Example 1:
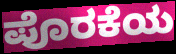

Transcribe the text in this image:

ಪೊರಕೆಯ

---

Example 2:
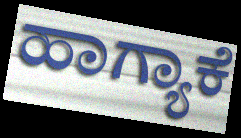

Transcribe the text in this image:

ಹಾಗ್ಯಾಕೆ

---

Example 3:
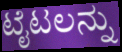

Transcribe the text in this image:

ಟೈಟಲನ್ನು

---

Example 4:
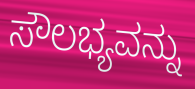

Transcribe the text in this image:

ಸೌಲಭ್ಯವನ್ನು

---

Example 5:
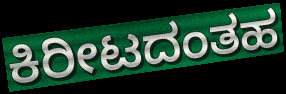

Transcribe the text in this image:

ಕಿರೀಟದಂತಹ